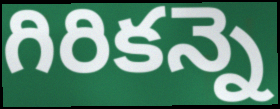
గిరికన్నె